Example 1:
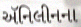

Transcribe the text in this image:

ઍનિલીનના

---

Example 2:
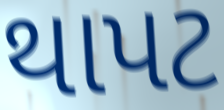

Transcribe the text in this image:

થાપટ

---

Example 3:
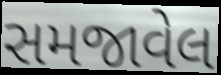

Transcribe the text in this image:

સમજાવેલ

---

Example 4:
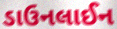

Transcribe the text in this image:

ડાઉનલાઈન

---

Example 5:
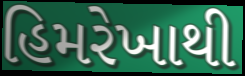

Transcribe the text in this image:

હિમરેખાથી